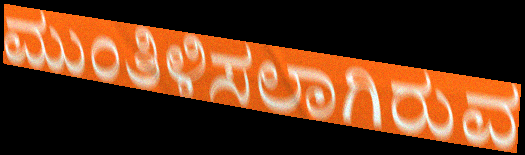
ಮುಂತಿಳಿಸಲಾಗಿರುವ